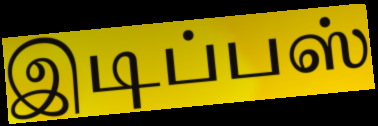
இடிப்பஸ்